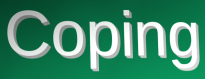
Coping